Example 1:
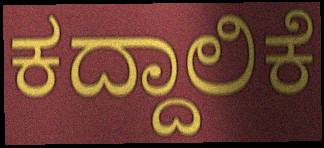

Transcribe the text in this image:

ಕದ್ದಾಲಿಕೆ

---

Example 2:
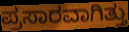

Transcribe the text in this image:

ಪ್ರಸಾರವಾಗಿತ್ತು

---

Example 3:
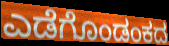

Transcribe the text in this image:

ಎಡೆಗೊಂಡಂಕದ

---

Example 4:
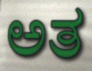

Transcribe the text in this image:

ಅತ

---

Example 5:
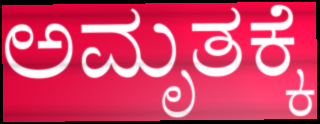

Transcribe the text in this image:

ಅಮೃತಕ್ಕೆ